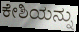
ಕೇಶಿಯನ್ನು